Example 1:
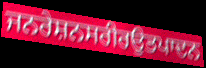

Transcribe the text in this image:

ਜਨਰੇਸ਼ਨਸਰੀਰਉਤਪਾਦਨ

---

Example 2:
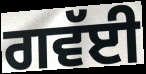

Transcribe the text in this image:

ਗਵੱਈ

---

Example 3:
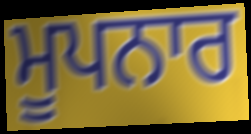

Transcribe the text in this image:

ਮੂਪਨਾਰ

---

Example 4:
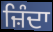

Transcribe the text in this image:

ਜ਼ਿੰਦਾ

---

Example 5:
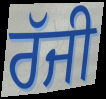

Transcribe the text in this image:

ਰੱਜੀ